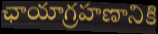
ఛాయాగ్రహణానికి